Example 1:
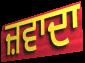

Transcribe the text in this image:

ਜ਼ਵਾਦਾ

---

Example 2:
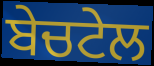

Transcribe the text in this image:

ਬੇਚਟੇਲ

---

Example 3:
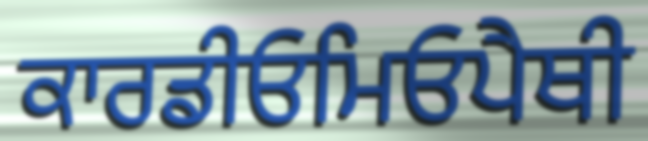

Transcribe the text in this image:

ਕਾਰਡੀਓਮਿਓਪੈਥੀ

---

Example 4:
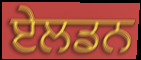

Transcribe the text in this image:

ਏਲਡਨ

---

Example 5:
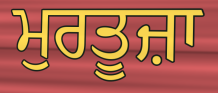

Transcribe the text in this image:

ਮੁਰਤੂਜ਼ਾ